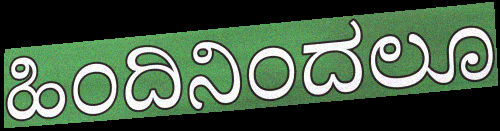
ಹಿಂದಿನಿಂದಲೂ